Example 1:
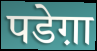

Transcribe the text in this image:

पडेग़ा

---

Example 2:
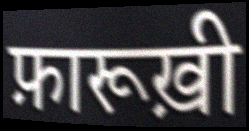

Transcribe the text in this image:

फ़ारूख़ी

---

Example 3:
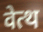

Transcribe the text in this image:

वेत्थ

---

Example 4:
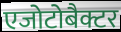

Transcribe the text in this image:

एजोटोबैक्टर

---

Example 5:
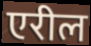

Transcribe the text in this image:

एरील